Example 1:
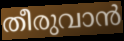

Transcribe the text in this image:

തീരുവാൻ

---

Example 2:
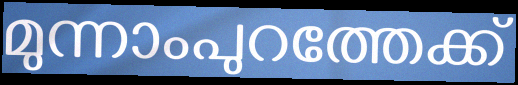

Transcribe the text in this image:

മുന്നാംപുറത്തേക്ക്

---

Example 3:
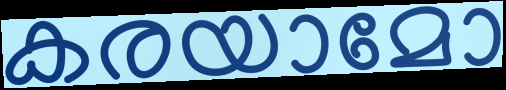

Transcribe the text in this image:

കരയാമോ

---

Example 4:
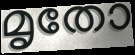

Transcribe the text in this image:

മൃതോ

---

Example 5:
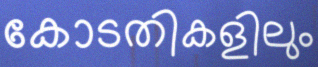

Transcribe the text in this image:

കോടതികളിലും